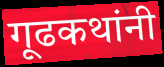
गूढकथांनी